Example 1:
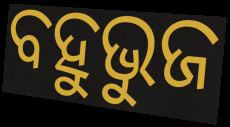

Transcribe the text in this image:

ବହୁଭୁଜ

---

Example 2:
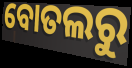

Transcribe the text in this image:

ବୋତଲରୁ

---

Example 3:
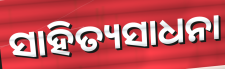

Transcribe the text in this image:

ସାହିତ୍ୟସାଧନା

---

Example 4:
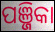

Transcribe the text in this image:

ପଞ୍ଜିକା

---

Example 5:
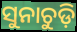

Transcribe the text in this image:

ସୁନାଚୁଡ଼ି